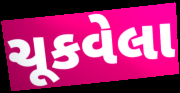
ચૂકવેલા